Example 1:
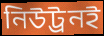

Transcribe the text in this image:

নিউট্রনই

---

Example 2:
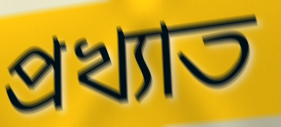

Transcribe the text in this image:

প্রখ্যাত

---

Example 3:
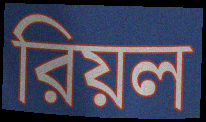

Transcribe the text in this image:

রিয়ল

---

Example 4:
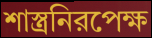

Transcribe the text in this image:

শাস্ত্রনিরপেক্ষ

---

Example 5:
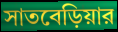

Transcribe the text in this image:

সাতবেড়িয়ার